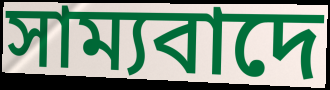
সাম্যবাদে